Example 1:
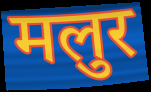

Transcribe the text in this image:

मलुर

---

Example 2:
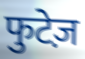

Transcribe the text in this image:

फुटेज़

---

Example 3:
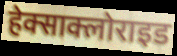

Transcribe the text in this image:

हेक्साक्लोराइड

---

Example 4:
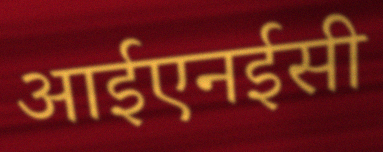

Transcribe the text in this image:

आईएनईसी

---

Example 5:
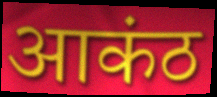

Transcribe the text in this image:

आकंठ